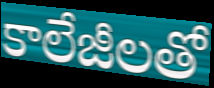
కాలేజీలతో